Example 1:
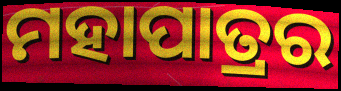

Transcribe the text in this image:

ମହାପାତ୍ରର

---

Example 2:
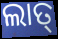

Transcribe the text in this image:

ଲାତ୍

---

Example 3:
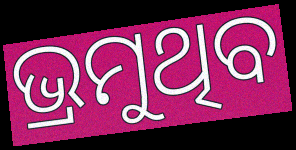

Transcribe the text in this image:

ଭ୍ରମୁଥିବ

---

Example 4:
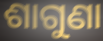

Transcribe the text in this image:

ଶାଗୁଣା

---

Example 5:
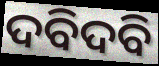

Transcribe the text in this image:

ଦବିଦବି